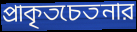
প্রাকৃতচেতনার